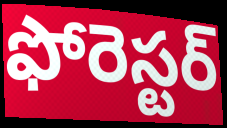
ఫోరెస్టర్